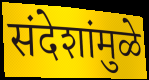
संदेशांमुळे